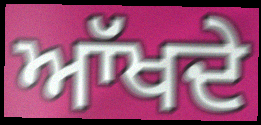
ਆੱਖਦੇ